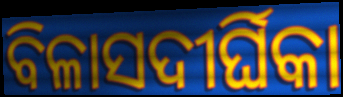
ବିଳାସଦୀର୍ଘିକା